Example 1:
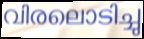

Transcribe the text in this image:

വിരലൊടിച്ചു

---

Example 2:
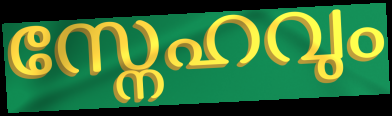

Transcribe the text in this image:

സ്നേഹവും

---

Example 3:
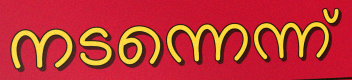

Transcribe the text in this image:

നടന്നെന്ന്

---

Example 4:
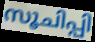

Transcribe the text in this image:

സൂചിപ്പി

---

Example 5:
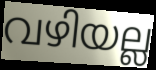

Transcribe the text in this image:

വഴിയല്ല